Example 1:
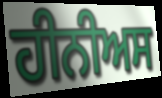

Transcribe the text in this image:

ਹੀਨੀਅਸ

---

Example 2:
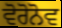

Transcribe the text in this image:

ਵੋਰੋਨੋਵ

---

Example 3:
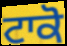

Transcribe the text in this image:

ਟਾਕੋ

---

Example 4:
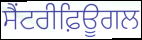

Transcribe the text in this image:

ਸੈਂਟਰੀਫ਼ਿਊਗਲ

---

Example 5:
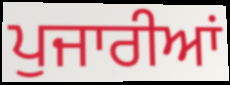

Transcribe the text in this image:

ਪੁਜਾਰੀਆਂ